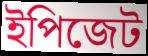
ইপিজেট